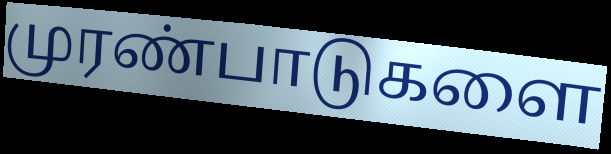
முரண்பாடுகளை